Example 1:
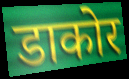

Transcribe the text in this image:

डाकोर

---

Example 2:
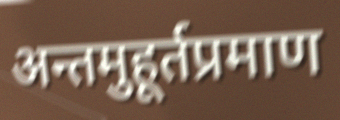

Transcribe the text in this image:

अन्तमुहूर्तप्रमाण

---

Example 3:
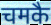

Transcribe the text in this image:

चमकै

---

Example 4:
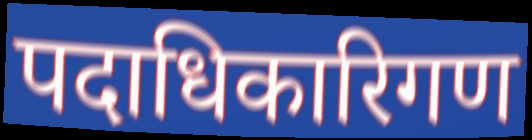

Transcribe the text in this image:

पदाधिकारिगण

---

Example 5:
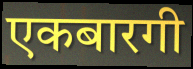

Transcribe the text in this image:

एकबारगी